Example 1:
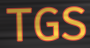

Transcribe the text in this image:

TGS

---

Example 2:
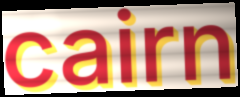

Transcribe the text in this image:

cairn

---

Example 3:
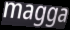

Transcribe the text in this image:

magga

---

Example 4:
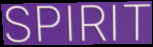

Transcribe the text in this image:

SPIRIT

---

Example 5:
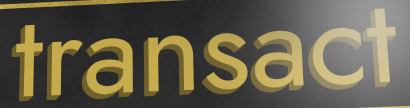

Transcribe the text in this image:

transact